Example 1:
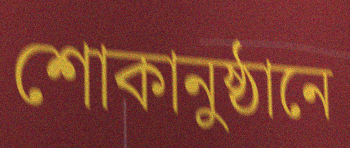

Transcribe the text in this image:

শোকানুষ্ঠানে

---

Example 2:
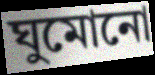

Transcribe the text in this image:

ঘুমোনো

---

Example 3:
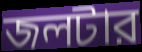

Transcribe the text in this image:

জলটার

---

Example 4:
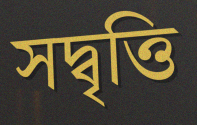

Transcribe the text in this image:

সদ্বৃত্তি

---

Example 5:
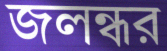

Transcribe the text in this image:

জলন্ধর